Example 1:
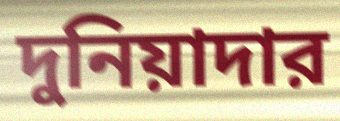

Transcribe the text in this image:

দুনিয়াদার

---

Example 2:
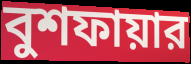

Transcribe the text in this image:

বুশফায়ার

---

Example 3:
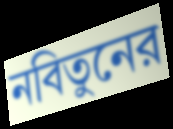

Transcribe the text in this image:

নবিতুনের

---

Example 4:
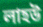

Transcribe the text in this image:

লাহউ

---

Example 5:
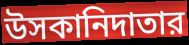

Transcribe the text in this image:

উসকানিদাতার